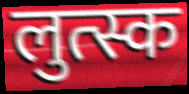
लुत्स्क